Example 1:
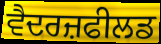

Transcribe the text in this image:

ਵੈਦਰਜ਼ਫੀਲਡ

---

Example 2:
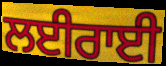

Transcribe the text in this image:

ਲਈਰਾਈ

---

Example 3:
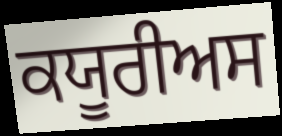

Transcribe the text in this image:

ਕਯੂਰੀਅਸ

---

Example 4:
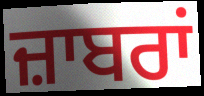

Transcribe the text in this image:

ਜ਼ਾਬਰਾਂ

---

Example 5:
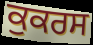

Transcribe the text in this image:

ਕੁਕਰਸ